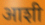
आशी